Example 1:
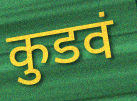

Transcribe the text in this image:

कुडवं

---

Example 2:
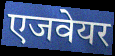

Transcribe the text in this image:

एजवेयर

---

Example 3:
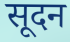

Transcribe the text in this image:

सूदन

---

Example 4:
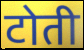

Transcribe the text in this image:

टोती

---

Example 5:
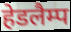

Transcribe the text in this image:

हेडलैम्प